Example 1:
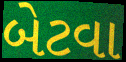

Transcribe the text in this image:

બેટવા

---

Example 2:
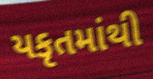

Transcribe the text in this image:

યકૃતમાંથી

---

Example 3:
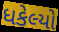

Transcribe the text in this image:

ધકેલ્યો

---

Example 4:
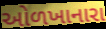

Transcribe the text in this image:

ઓળખાનારા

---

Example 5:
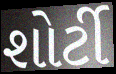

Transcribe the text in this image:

શોર્ટી